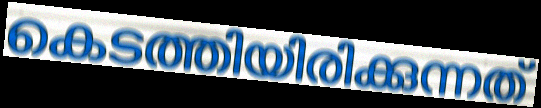
കെടത്തിയിരിക്കുന്നത്